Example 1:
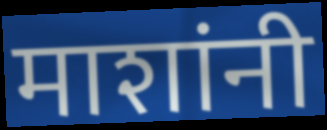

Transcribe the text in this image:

माशांनी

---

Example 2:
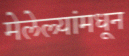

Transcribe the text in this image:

मेलेल्यांमधून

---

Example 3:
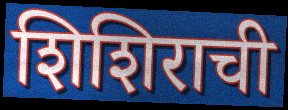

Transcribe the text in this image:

शिशिराची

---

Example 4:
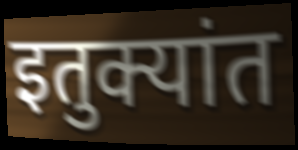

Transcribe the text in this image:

इतुक्यांत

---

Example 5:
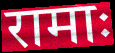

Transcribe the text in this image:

रामाः